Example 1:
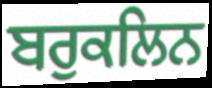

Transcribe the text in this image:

ਬਰੁਕਲਿਨ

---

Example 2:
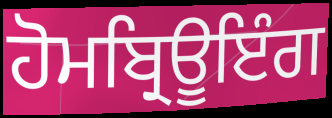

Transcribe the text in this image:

ਹੋਮਬ੍ਰਿਊਇੰਗ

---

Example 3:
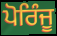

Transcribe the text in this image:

ਪੋਰਿੰਜੂ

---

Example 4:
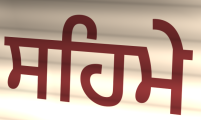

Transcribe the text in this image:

ਸਹਿਮੇ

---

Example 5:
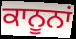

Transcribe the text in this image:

ਕਾਨੂਨਾਂ